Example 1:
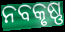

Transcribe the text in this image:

ନବକୃଷ୍ଣ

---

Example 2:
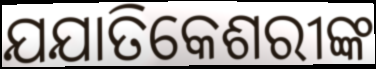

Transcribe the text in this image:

ଯଯାତିକେଶରୀଙ୍କ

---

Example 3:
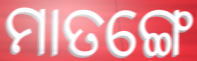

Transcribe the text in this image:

ମାତଙ୍ଗେ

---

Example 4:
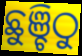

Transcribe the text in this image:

ଛୁଞ୍ଚିଠୁ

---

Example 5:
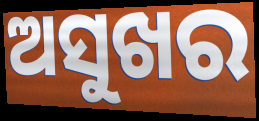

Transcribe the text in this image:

ଅସୁଖର